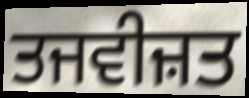
ਤਜਵੀਜ਼ਤ